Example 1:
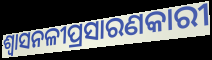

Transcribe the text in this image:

ଶ୍ୱାସନଳୀପ୍ରସାରଣକାରୀ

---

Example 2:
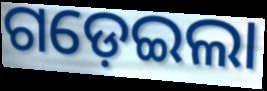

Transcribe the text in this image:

ଗଡ଼େଇଲା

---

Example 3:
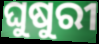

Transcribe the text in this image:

ଘୁଷୁରୀ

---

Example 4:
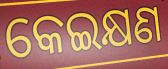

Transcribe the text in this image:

କେଇକ୍ଷଣ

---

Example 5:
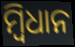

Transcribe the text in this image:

ମ୍ବିଧାନ